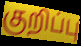
குறிப்பு